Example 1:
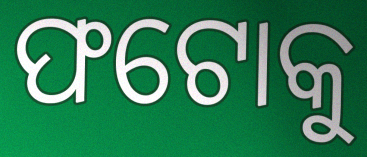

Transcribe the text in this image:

ଫଟୋକୁ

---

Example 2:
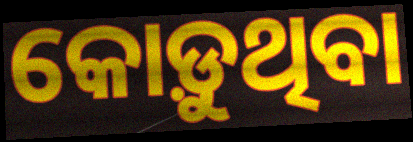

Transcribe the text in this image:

କୋଡ଼ୁଥିବା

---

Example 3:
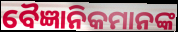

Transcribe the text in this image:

ବୈଜ୍ଞାନିକମାନଙ୍କ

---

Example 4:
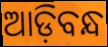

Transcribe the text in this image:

ଆଡ଼ିବନ୍ଧ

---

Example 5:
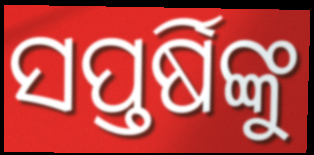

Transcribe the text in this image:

ସପ୍ତର୍ଷିଙ୍କୁ